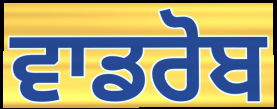
ਵਾਡਰੋਬ